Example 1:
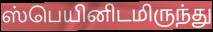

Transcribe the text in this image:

ஸ்பெயினிடமிருந்து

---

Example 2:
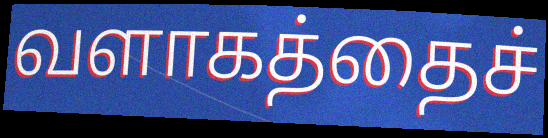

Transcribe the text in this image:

வளாகத்தைச்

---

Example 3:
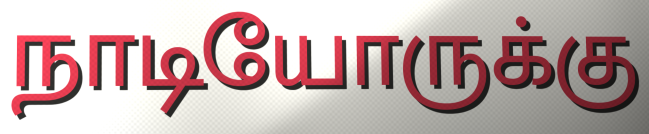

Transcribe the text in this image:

நாடியோருக்கு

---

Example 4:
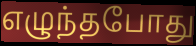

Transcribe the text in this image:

எழுந்தபோது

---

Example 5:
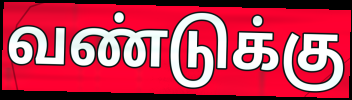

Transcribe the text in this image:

வண்டுக்கு